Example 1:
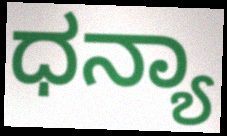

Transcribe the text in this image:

ಧನ್ಯಾ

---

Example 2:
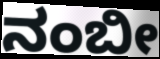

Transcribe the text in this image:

ನಂಬೀ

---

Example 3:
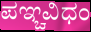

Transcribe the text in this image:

ಪಞ್ಚವಿಧಂ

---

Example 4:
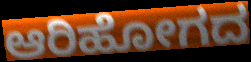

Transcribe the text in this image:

ಆರಿಹೋಗದ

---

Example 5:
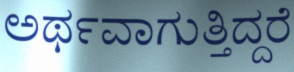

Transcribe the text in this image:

ಅರ್ಥವಾಗುತ್ತಿದ್ದರೆ